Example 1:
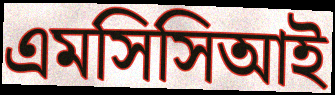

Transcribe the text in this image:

এমসিসিআই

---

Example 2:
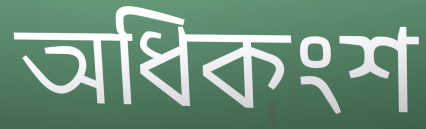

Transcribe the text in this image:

অধিকংশ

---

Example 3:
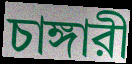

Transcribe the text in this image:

চাঙ্গারী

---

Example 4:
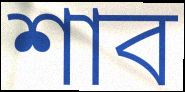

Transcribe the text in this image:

শাব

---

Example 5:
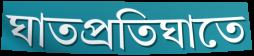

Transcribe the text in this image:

ঘাতপ্রতিঘাতে